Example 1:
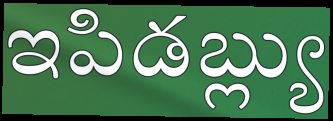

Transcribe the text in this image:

ఇపిడబ్ల్యు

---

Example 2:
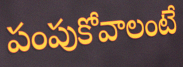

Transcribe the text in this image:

పంపుకోవాలంటే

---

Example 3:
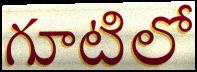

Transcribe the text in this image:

గూటిలో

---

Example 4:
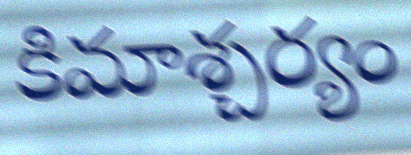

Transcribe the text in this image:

కిమాశ్చర్యం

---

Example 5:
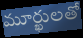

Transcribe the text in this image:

మూర్ఖులతో